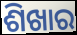
ଶିଖାର